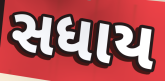
સધાય